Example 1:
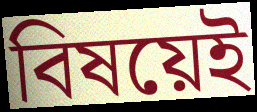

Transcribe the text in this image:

বিষয়েই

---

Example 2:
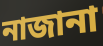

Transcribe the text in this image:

নাজানা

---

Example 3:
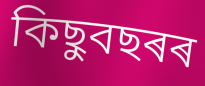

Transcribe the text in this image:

কিছুবছৰৰ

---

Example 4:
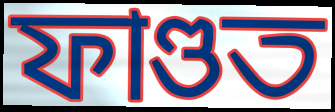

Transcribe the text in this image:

ফাণ্ডত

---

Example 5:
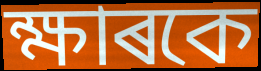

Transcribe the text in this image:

ক্ষাৰকে